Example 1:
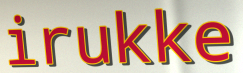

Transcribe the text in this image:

irukke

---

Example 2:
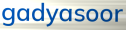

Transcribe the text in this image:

gadyasoor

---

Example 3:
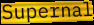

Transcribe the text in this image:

Supernal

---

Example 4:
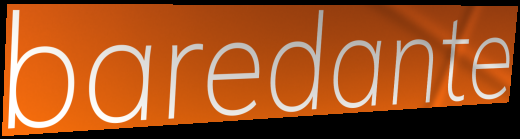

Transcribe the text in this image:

baredante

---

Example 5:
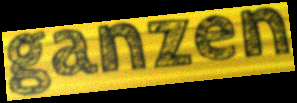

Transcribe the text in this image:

ganzen